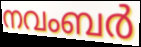
നവംബർ